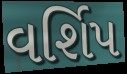
વર્શિપ